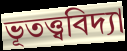
ভূতত্ত্ববিদ্যা